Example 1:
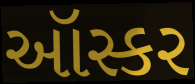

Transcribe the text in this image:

ઑસ્કર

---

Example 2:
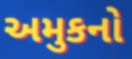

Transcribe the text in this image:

અમુકનો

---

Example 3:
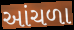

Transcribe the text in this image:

આંચળા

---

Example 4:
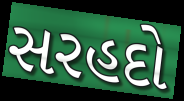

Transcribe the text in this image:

સરહદો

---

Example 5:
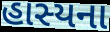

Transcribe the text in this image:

હાસ્યના